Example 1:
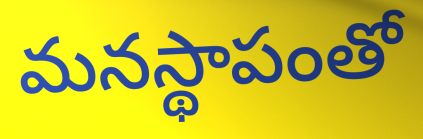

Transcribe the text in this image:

మనస్థాపంతో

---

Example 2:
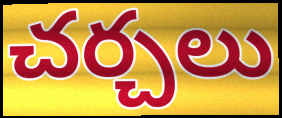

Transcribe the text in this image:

చర్చలు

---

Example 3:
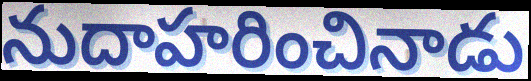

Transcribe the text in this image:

నుదాహరించినాడు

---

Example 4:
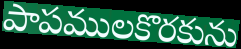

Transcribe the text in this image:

పాపములకొరకును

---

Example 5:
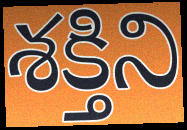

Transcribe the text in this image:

శక్తిని